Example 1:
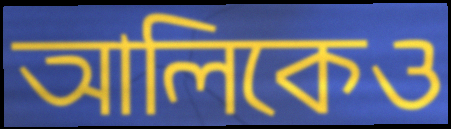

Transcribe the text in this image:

আলিকেও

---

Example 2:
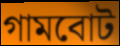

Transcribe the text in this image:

গামবোট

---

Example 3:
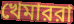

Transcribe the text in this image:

খেমাররা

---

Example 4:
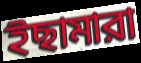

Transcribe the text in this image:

ইছামারা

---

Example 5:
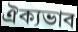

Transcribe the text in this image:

ঐক্যভাব